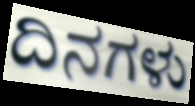
ದಿನಗಳು